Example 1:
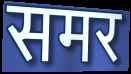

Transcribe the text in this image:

समर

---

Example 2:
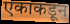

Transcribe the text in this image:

एकाकडून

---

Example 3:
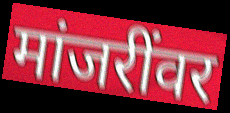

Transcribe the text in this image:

मांजरींवर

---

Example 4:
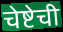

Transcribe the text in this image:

चेष्टेची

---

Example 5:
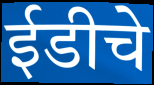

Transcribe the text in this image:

ईडीचे